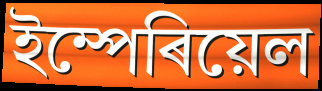
ইম্পেৰিয়েল